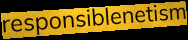
responsiblenetism